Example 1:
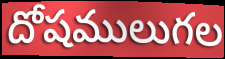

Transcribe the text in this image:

దోషములుగల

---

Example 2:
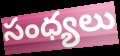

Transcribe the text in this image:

సంధ్యలు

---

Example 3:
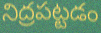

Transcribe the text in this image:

నిద్రపట్టడం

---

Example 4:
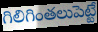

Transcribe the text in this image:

గిలిగింతలుపెట్టే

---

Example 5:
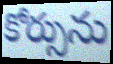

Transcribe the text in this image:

కోర్సును